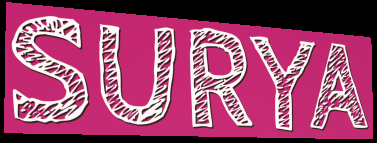
SURYA